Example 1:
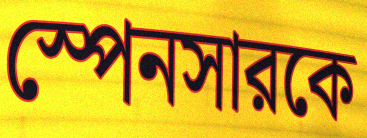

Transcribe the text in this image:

স্পেনসারকে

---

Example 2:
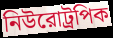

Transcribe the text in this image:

নিউরোট্রপিক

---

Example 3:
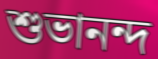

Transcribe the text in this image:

শুভানন্দ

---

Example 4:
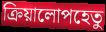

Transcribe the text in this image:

ক্রিয়ালোপহেতু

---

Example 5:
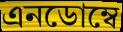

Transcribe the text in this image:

এনডোম্বে